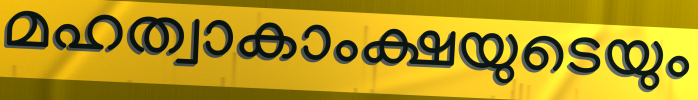
മഹത്വാകാംക്ഷയുടെയും